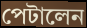
পেটালেন